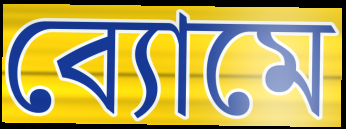
ব্যোমে